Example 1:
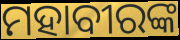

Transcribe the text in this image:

ମହାବୀରଙ୍କ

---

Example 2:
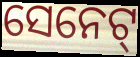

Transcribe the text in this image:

ସେନେଟ୍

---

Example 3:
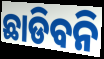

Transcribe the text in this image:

ଛାଡିବନି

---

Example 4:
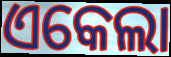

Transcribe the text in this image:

ଏକେଲା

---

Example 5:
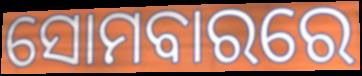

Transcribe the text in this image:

ସୋମବାରରେ